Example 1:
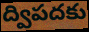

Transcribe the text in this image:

ద్విపదకు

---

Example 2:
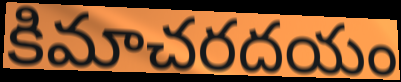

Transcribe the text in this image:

కిమాచరదయం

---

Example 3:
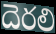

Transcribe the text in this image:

దెరలి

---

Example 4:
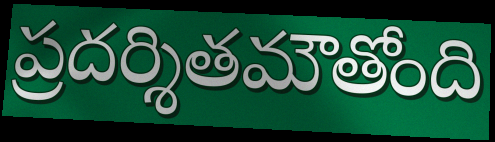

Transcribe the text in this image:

ప్రదర్శితమౌతోంది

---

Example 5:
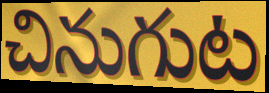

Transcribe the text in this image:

చినుగుట